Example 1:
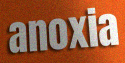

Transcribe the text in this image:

anoxia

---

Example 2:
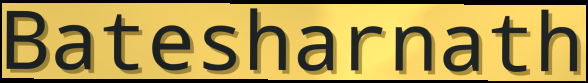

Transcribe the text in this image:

Batesharnath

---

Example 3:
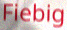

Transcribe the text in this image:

Fiebig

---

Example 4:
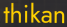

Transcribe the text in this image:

thikan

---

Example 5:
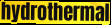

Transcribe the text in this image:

hydrothermal